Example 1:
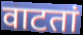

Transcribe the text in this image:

वाटतां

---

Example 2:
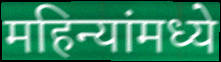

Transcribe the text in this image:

महिन्यांमध्ये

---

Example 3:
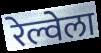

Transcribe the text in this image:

रेल्वेला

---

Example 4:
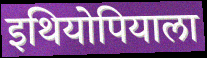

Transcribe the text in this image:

इथियोपियाला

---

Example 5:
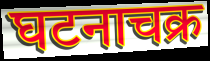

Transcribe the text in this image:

घटनाचक्र